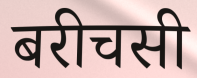
बरीचसी